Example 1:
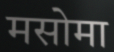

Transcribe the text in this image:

मसोमा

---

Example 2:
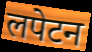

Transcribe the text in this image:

लपेटन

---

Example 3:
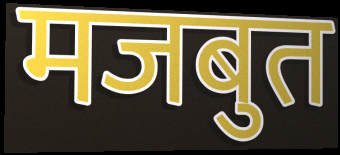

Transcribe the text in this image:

मजबुत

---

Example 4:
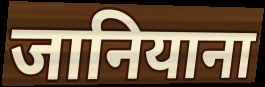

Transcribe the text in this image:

जानियाना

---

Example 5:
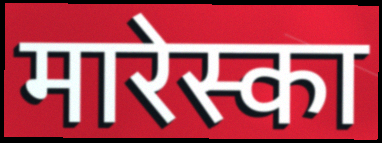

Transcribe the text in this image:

मारेस्का